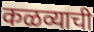
कळव्याची